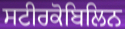
ਸਟੀਰਕੋਬਿਲਿਨ